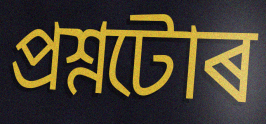
প্ৰশ্নটোৰ